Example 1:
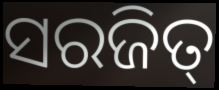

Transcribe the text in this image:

ସରଜିତ୍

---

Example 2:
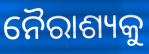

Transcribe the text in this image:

ନୈରାଶ୍ୟକୁ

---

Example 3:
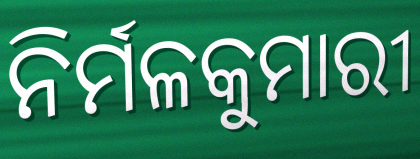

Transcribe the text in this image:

ନିର୍ମଳକୁମାରୀ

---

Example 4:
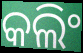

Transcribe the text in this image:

କଲିଂ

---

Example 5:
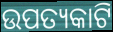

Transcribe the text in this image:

ଉପତ୍ୟକାଟି